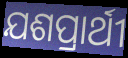
ଯଶପ୍ରାର୍ଥୀ